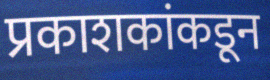
प्रकाशकांकडून